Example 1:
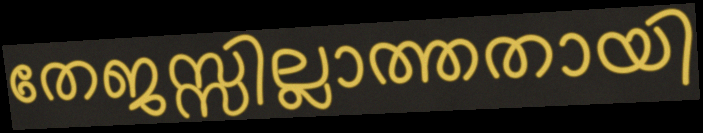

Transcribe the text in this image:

തേജസ്സില്ലാത്തതായി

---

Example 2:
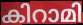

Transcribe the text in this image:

കിറാമി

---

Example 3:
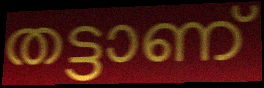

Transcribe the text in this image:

തട്ടാണ്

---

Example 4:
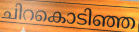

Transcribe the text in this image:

ചിറകൊടിഞ്ഞ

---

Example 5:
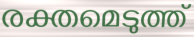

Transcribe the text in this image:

രക്തമെടുത്ത്